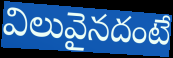
విలువైనదంటే